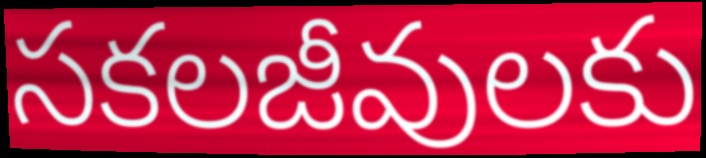
సకలజీవులకు